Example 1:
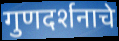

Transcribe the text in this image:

गुणदर्शनाचे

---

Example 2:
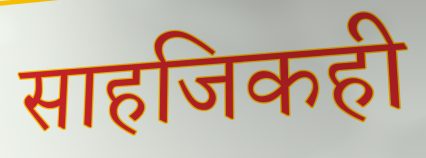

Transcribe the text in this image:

साहजिकही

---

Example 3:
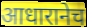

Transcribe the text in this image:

आधारानेच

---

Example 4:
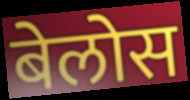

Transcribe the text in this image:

बेलोस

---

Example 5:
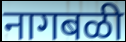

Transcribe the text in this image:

नागबळी